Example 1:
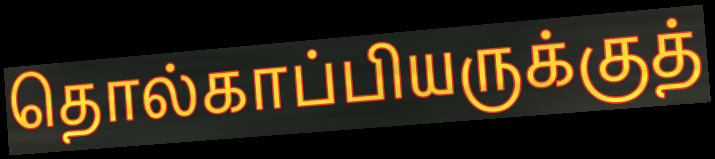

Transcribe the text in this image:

தொல்காப்பியருக்குத்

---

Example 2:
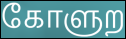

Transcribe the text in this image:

கோளுற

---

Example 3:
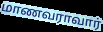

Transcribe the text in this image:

மாணவராவார்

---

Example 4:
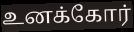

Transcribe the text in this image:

உனக்கோர்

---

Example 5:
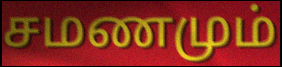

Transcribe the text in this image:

சமணமும்